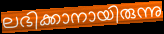
ലഭിക്കാനായിരുന്നു